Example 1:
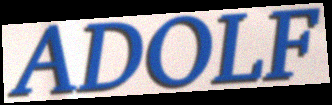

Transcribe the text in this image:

ADOLF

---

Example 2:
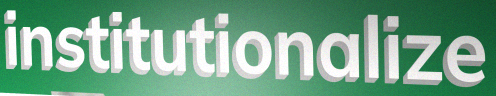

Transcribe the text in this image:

institutionalize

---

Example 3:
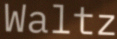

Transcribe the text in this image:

Waltz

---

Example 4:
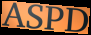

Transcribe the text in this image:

ASPD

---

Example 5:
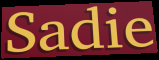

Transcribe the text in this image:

Sadie